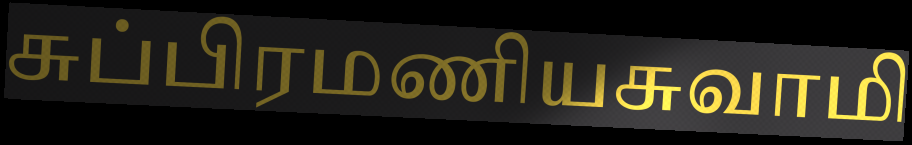
சுப்பிரமணியசுவாமி